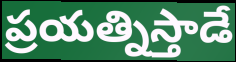
ప్రయత్నిస్తాడే